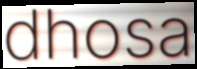
dhosa